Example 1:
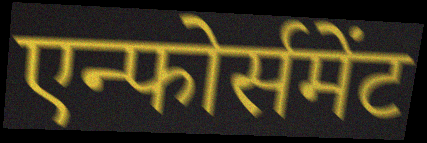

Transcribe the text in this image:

एन्फोर्समेंट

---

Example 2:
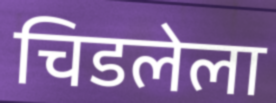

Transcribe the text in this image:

चिडलेला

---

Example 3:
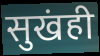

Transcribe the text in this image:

सुखंही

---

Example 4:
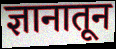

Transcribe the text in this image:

ज्ञानातून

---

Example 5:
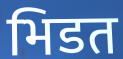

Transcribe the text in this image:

भिडत